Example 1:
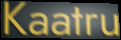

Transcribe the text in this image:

Kaatru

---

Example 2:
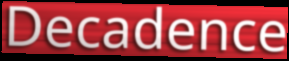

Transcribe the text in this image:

Decadence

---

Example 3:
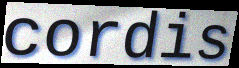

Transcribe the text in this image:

cordis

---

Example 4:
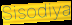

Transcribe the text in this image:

Sisodiya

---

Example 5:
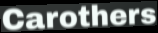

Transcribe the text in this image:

Carothers